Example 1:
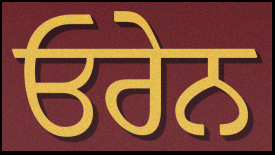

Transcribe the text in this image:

ਓਰੇਨ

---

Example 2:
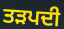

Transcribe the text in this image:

ਤੜਪਦੀ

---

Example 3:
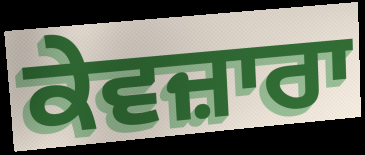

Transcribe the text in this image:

ਕੇਵਜ਼ਾਰਾ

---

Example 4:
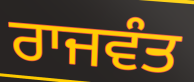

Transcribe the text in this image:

ਰਾਜਵੰਤ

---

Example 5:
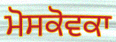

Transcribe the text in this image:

ਮੋਸਕੋਵਕਾ